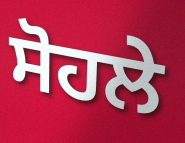
ਸੋਹਲੇ